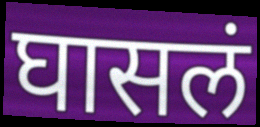
घासलं